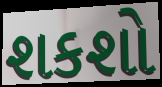
શકશો